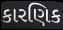
કારણિક